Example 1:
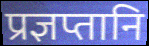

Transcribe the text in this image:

प्रज्ञप्तानि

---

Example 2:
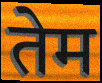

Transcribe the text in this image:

तेम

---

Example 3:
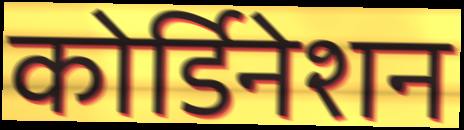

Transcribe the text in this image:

कोर्डिनेशन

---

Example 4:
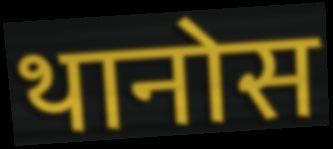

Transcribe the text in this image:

थानोस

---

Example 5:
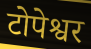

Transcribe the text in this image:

टोपेश्वर